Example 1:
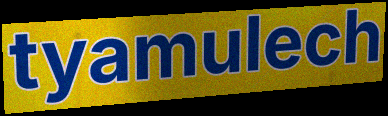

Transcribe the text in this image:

tyamulech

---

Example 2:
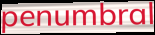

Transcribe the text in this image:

penumbral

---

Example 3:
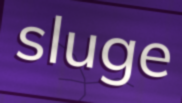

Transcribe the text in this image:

sluge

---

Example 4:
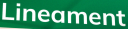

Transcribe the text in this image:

Lineament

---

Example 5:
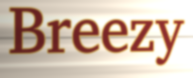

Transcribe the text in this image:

Breezy